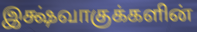
இக்ஷ்வாகுக்களின்